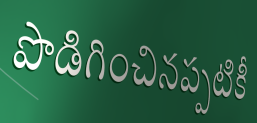
పొడిగించినప్పటికీ